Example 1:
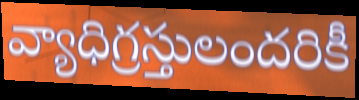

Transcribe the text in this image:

వ్యాధిగ్రస్తులందరికీ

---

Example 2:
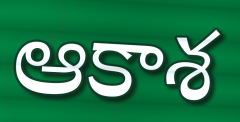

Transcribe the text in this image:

ఆకాశ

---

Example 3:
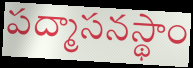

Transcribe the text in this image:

పద్మాసనస్థాం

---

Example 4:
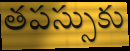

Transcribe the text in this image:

తపస్సుకు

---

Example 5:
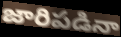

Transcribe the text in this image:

జారిపడినా